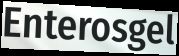
Enterosgel